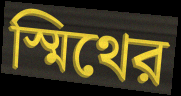
স্মিথের